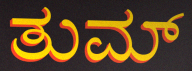
ತುಮ್